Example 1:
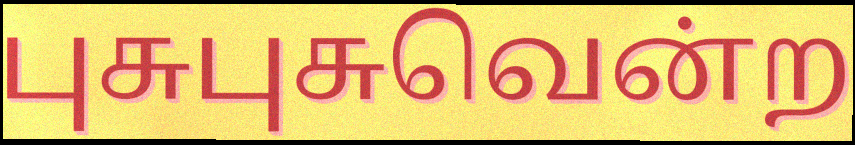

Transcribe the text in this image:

புசுபுசுவென்ற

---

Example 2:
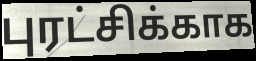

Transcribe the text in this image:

புரட்சிக்காக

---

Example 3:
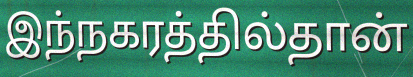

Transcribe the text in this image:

இந்நகரத்தில்தான்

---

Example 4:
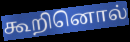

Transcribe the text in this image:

கூறினொல்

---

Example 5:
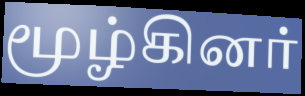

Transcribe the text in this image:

மூழ்கினர்